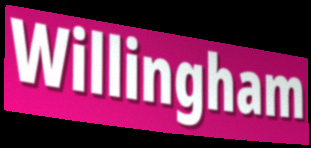
Willingham